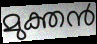
മുക്തൻ